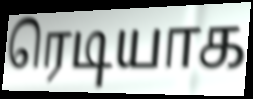
ரெடியாக